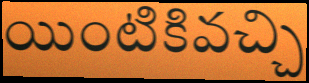
యింటికివచ్చి